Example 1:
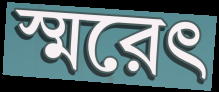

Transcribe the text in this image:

স্মরেৎ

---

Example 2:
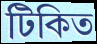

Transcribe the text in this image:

টিকিত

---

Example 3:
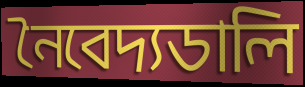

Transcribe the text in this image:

নৈবেদ্যডালি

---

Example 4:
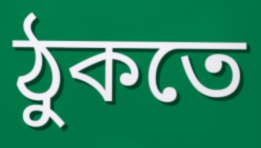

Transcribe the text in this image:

ঠুকতে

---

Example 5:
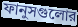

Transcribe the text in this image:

ফানুসগুলোর